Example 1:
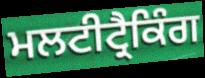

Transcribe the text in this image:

ਮਲਟੀਟ੍ਰੈਕਿੰਗ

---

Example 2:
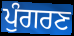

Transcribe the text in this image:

ਪੁੰਗਰਣ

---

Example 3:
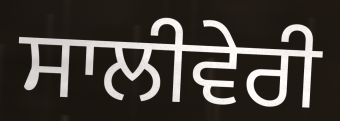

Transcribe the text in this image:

ਸਾਲੀਵੇਰੀ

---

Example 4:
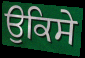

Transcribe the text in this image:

ਉਕਿਸੇ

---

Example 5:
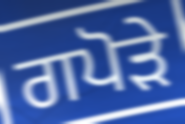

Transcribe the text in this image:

ਗਪੋੜੇ